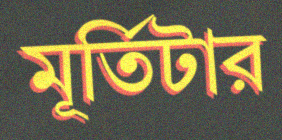
মূর্তিটার